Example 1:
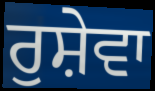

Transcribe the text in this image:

ਰੁਸ਼ੇਵਾ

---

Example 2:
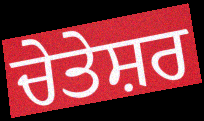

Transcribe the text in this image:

ਚੇਤੇਸ਼ਰ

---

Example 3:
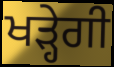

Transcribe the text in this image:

ਖੜ੍ਹੇਗੀ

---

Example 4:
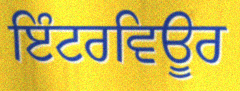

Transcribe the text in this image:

ਇੰਟਰਵਿਊਰ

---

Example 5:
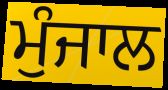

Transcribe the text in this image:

ਮੁੰਜਾਲ